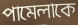
পামেলাকে